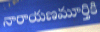
నారాయణమూర్తికి